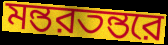
মন্তরতন্তরে